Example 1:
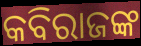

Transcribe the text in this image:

କବିରାଜଙ୍କ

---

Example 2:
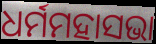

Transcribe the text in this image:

ଧର୍ମମହାସଭା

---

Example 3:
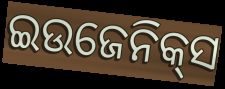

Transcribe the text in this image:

ଇଉଜେନିକ୍‌ସ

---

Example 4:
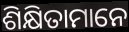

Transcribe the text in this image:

ଶିକ୍ଷିତାମାନେ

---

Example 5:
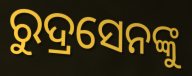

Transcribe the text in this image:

ରୁଦ୍ରସେନଙ୍କୁ